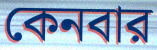
কেনবার